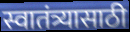
स्वातंत्र्यासाठी